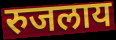
रुजलाय